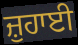
ਜ਼ੁਹਾਈ